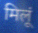
मिलूं